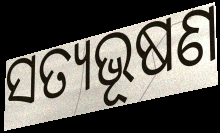
ସତ୍ୟଭୂଷଣ